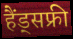
हैंड्सफ्री